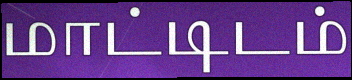
மாட்டிடம்